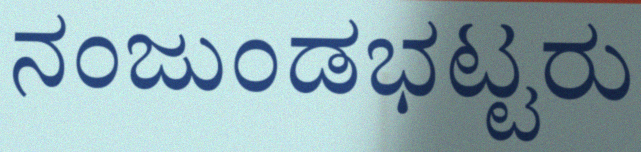
ನಂಜುಂಡಭಟ್ಟರು